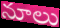
నూలు